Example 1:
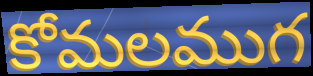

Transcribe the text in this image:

కోమలముగ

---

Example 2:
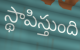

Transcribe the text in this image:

స్థాపిస్తుంది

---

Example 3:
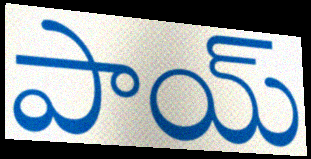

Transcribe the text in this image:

పాయ్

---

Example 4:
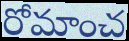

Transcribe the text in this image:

రోమాంచ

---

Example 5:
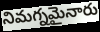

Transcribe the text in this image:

నిమగ్నమైనారు